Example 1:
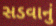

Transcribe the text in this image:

સડવાનું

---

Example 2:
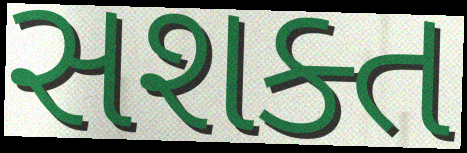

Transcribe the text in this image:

સશક્ત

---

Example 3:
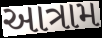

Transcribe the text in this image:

આત્રામ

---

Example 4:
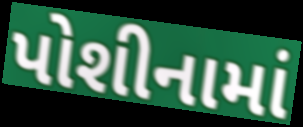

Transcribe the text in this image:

પોશીનામાં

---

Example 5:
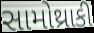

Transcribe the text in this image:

સામોથ્રાકી